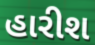
હારીશ